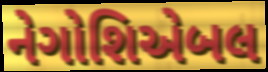
નેગોશિએબલ